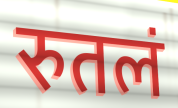
रुतलं